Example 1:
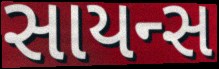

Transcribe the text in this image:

સાયન્સ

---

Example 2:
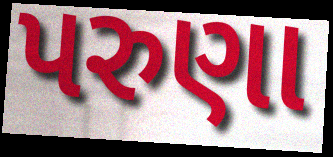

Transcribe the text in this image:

પરુણા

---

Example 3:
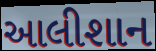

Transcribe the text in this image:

આલીશાન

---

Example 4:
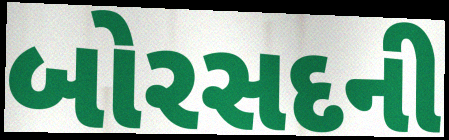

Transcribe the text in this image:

બોરસદની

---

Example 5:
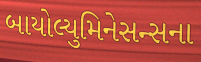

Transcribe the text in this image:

બાયોલ્યુમિનેસન્સના